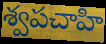
శ్వపచాహి